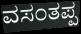
ವಸಂತಪ್ಪ